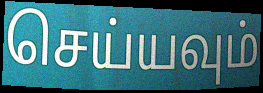
செய்யவும்